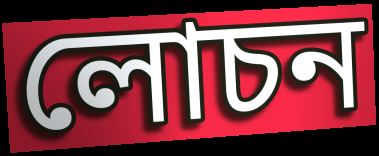
লোচন